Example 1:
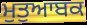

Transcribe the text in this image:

ਮੁਤੁਆਬਕ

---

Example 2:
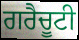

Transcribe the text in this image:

ਗਰੈਚੂਟੀ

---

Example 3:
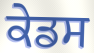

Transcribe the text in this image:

ਕੇਡਸ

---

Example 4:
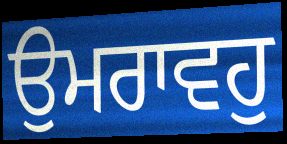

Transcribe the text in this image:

ਉਮਰਾਵਹੁ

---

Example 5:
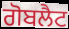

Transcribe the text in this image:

ਗੋਬਲੈਟ